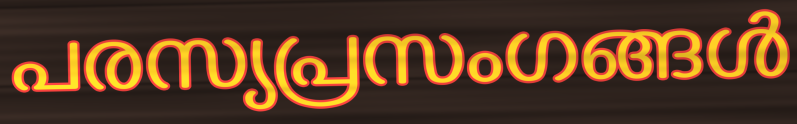
പരസ്യപ്രസംഗങ്ങൾ